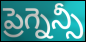
ప్రెగ్నెన్సీ